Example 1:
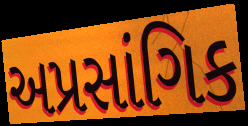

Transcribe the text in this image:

અપ્રસાંગિક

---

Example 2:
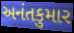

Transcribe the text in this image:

અનંતકુમાર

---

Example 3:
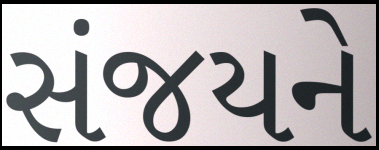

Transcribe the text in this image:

સંજયને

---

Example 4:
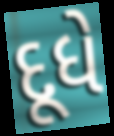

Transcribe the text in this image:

દૂધે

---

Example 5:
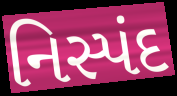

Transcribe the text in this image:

નિસ્પંદ